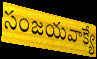
సంజయవాక్యే